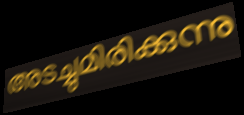
അടച്ചുമിരിക്കുന്നു